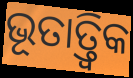
ଭୂତାତ୍ତ୍ୱିକ